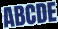
ABCDE